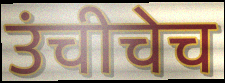
उंचीचेच